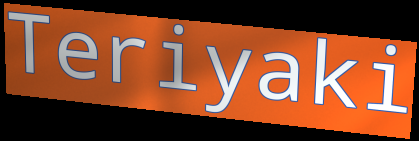
Teriyaki